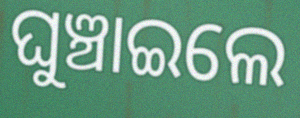
ଘୁଞ୍ଚାଇଲେ